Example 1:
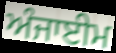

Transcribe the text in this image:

ਅੰਜਾਈਮ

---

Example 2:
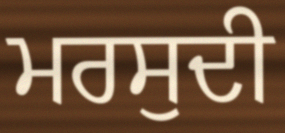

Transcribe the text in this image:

ਮਰਸੁਦੀ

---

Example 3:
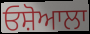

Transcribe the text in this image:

ਓਸ਼ੋਆਲਾ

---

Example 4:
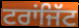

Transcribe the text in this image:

ਟਰਾਂਜਿੱਟ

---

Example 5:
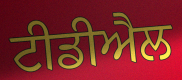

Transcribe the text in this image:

ਟੀਡੀਐਲ